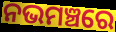
ନଭମଞ୍ଚରେ